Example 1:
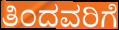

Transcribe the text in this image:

ತಿಂದವರಿಗೆ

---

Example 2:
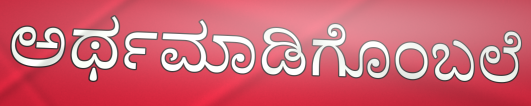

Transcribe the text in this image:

ಅರ್ಥಮಾಡಿಗೊಂಬಲೆ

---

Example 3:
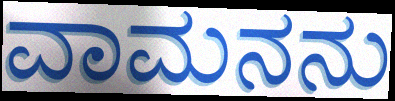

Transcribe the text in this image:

ವಾಮನನು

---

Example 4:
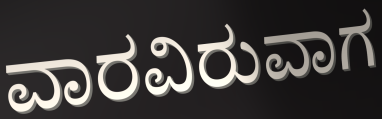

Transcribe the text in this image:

ವಾರವಿರುವಾಗ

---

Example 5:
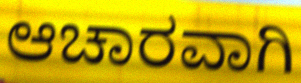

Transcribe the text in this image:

ಆಚಾರವಾಗಿ